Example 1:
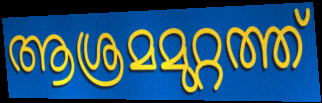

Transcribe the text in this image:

ആശ്രമമുറ്റത്ത്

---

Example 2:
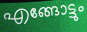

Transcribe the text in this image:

എങ്ങോട്ടും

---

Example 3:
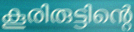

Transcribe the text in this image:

കൂരിരുട്ടിന്റെ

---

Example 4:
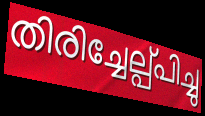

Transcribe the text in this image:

തിരിച്ചേല്പ്പിച്ചു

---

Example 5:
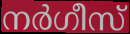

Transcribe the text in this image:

നർഗീസ്